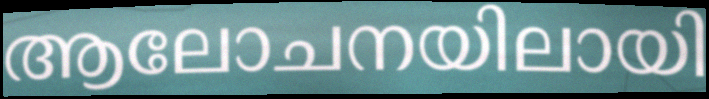
ആലോചനയിലായി